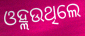
ଓହ୍ଲଉଥିଲେ